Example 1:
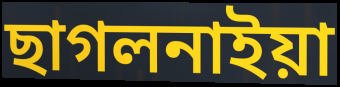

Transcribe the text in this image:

ছাগলনাইয়া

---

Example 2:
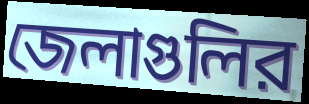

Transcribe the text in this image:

জেলাগুলির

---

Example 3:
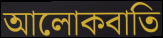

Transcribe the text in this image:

আলোকবাতি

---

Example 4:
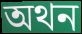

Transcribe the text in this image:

অথন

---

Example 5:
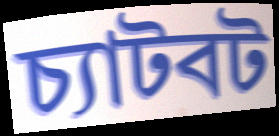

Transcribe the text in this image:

চ্যাটবট